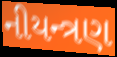
નીયન્ત્રણ